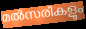
മൽസരികളും